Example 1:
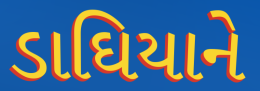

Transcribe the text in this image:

ડાઘિયાને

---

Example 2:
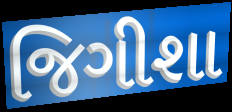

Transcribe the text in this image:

જિગીશા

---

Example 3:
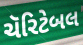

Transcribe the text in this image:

ચૅરિટેબલ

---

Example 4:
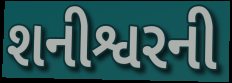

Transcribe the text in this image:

શનીશ્વરની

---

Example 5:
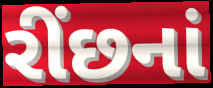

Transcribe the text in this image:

રીંછનાં